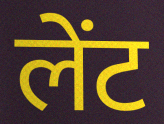
लेंट